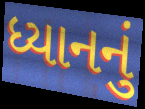
ધ્યાનનું